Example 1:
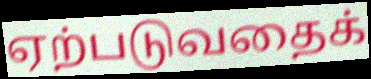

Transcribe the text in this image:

ஏற்படுவதைக்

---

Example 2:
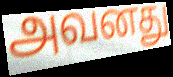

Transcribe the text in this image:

அவனது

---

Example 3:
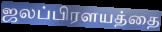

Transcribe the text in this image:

ஜலப்பிரளயத்தை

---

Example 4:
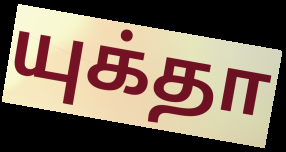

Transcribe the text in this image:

யுக்தா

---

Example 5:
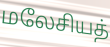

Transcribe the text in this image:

மலேசியத்